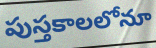
పుస్తకాలలోనూ